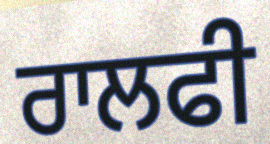
ਰਾਲਫੀ